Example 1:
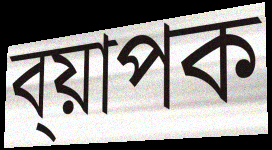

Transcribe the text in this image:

ব্য়াপক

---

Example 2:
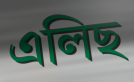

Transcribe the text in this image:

এলিছ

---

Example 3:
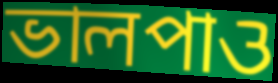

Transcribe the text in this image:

ভালপাও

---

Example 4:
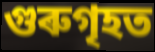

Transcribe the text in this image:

গুৰুগৃহত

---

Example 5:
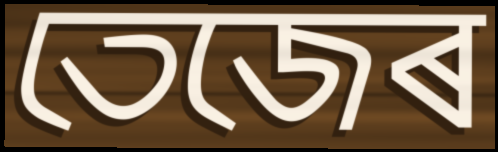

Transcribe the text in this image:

তেজেৰ